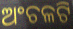
ଅଂଚଳଟି